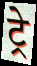
ट्रे